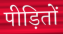
पीड़ितों